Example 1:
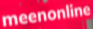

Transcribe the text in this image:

meenonline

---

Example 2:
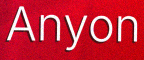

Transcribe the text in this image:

Anyon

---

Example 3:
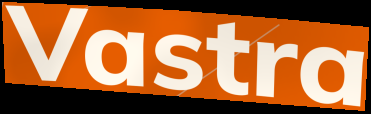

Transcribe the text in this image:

Vastra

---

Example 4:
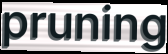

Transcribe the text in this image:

pruning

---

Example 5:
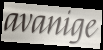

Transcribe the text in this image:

avanige